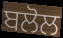
ਬਲੋਲ